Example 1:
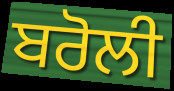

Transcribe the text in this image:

ਬਰੋਲੀ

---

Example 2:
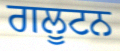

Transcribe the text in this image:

ਗਲੂਟਨ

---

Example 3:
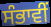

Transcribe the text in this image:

ਸੰਭਾਵੀਂ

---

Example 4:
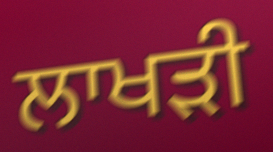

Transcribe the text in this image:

ਲਾਖੜੀ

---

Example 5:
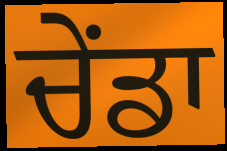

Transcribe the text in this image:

ਚੇਂਡਾ